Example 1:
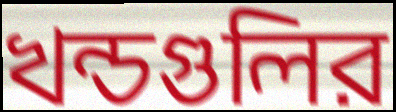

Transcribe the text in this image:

খন্ডগুলির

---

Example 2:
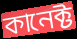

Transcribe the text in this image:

কানেক্ট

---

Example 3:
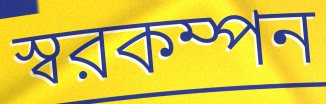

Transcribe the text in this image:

স্বরকম্পন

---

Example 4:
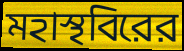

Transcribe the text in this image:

মহাস্থবিরের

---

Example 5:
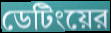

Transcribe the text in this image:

ডেটিংয়ের